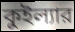
কুইল্যার